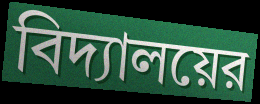
বিদ্যালয়ের